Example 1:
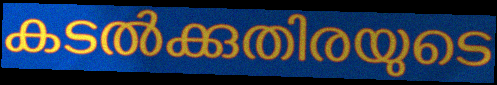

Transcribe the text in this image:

കടൽക്കുതിരയുടെ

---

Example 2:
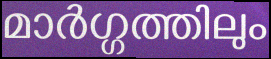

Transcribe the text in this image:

മാർഗ്ഗത്തിലും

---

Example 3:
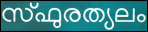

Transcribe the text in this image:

സ്ഫുരത്യലം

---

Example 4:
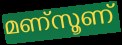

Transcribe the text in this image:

മണ്സൂണ്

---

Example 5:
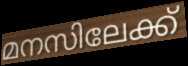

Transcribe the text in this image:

മനസിലേക്ക്